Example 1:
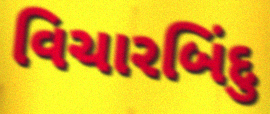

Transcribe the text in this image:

વિચારબિંદુ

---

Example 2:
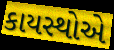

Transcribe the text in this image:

કાયસ્થોએ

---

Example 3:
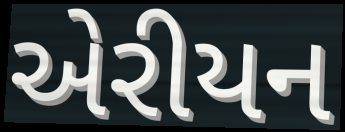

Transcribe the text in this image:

એરીયન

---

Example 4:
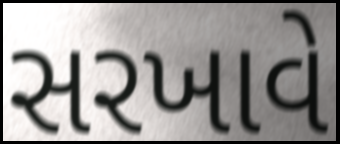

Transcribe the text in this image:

સરખાવે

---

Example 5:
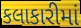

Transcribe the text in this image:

કલાકારીમાં